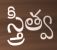
స్త్రీత్వ